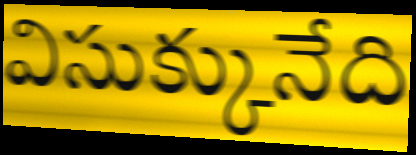
విసుక్కునేది